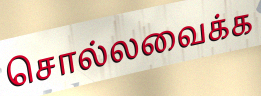
சொல்லவைக்க